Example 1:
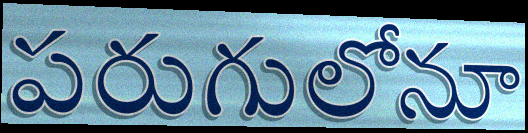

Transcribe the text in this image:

పరుగులోనూ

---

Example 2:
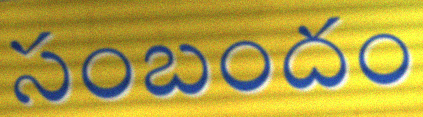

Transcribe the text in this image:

సంబందం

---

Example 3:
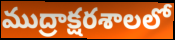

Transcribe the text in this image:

ముద్రాక్షరశాలలో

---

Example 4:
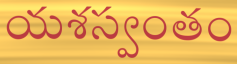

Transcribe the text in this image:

యశస్వంతం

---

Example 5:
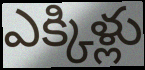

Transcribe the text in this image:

ఎక్కిళ్లు